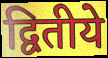
द्वितीये